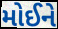
મોઈને